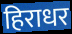
हिराधर